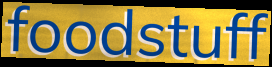
foodstuff